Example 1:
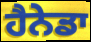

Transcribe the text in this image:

ਹੈਨੇਡਾ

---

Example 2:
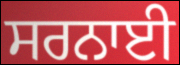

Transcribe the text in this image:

ਸਰਨਾਈ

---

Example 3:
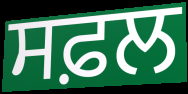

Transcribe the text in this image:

ਸਫ਼ਲ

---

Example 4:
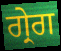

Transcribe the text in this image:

ਗ੍ਰੇਗ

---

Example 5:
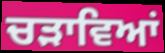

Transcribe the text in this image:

ਚੜਾਵਿਆਂ